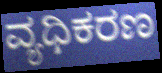
ವ್ಯಧಿಕರಣ